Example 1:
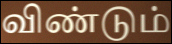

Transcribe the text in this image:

விண்டும்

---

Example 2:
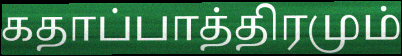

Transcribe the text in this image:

கதாப்பாத்திரமும்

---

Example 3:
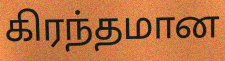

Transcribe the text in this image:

கிரந்தமான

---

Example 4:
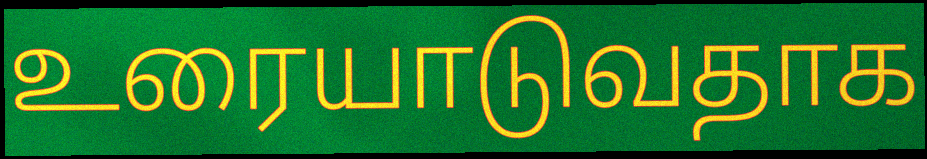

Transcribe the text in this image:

உரையாடுவதாக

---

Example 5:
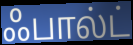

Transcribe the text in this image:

ஃபால்ட்